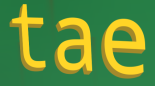
tae